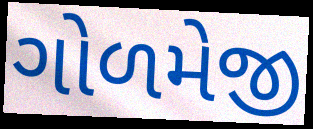
ગોળમેજી